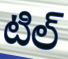
టిల్